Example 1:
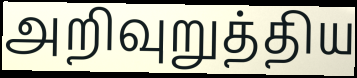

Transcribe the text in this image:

அறிவுறுத்திய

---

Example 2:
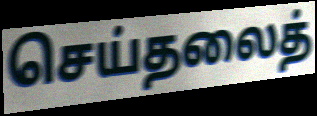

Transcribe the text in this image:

செய்தலைத்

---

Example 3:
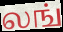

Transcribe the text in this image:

லங்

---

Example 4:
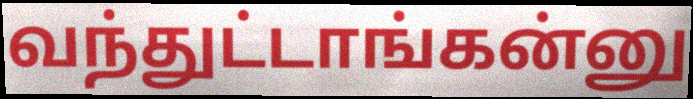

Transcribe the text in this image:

வந்துட்டாங்கன்னு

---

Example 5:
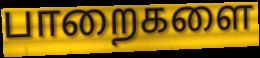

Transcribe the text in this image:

பாறைகளை